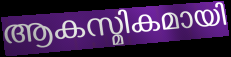
ആകസ്മികമായി